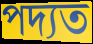
পদ্যত